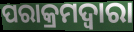
ପରାକ୍ରମଦ୍ୱାରା